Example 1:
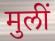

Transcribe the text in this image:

मुलीं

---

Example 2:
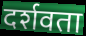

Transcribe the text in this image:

दर्शवता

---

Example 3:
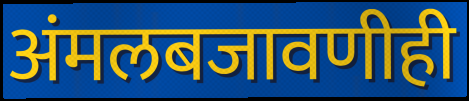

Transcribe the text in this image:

अंमलबजावणीही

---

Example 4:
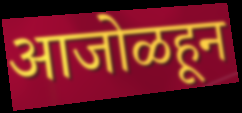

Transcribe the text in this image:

आजोळहून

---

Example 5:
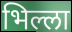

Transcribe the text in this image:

भिल्ला